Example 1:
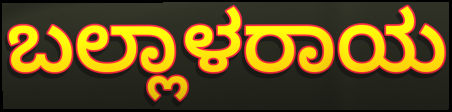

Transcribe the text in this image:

ಬಲ್ಲಾಳರಾಯ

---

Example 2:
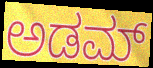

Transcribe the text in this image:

ಅಡಮ್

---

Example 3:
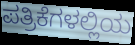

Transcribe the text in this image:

ಪತ್ರಿಕೆಗಳಲ್ಲಿಯ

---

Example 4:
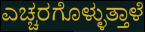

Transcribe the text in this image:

ಎಚ್ಚರಗೊಳ್ಳುತ್ತಾಳೆ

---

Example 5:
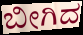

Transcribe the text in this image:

ಬೀಗಿದ